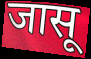
जासू